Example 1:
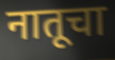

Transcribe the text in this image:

नातूचा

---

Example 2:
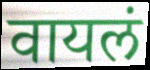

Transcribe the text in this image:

वायलं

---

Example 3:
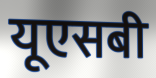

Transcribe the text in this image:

यूएसबी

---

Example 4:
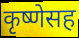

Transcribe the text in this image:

कृष्णेसह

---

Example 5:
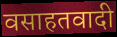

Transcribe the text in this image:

वसाहतवादी